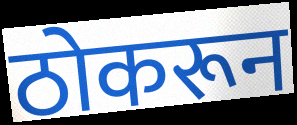
ठोकरून